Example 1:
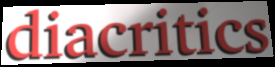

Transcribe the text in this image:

diacritics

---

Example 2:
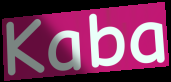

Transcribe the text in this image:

Kaba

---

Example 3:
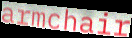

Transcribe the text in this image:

armchair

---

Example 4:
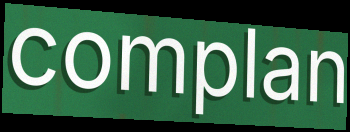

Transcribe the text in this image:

complan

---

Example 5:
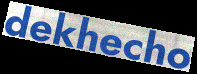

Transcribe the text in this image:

dekhecho